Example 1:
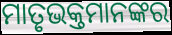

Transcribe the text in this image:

ମାତୃଭକ୍ତମାନଙ୍କର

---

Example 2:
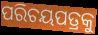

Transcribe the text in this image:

ପରିଚୟପତ୍ରକୁ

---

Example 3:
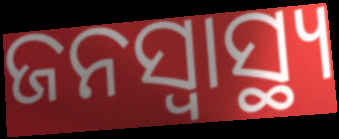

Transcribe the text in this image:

ଜନସ୍ବାସ୍ଥ୍ୟ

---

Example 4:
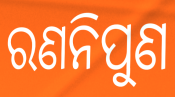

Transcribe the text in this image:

ରଣନିପୁଣ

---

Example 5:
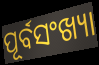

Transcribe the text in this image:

ପୂର୍ବସଂଖ୍ୟା